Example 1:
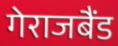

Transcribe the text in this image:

गेराजबैंड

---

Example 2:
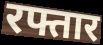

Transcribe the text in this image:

रफ्तार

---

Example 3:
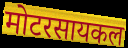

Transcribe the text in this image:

मोटरसायकल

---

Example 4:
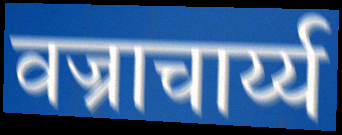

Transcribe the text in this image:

वज्राचार्य्य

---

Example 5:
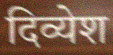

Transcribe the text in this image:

दिव्येश